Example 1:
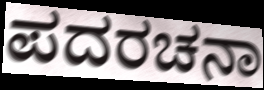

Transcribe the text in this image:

ಪದರಚನಾ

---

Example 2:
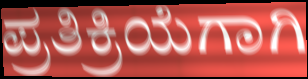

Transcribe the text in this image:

ಪ್ರತಿಕ್ರಿಯೆಗಾಗಿ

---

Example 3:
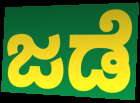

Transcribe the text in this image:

ಜಡೆ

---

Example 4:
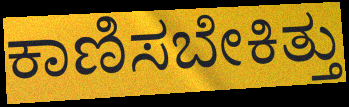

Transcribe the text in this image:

ಕಾಣಿಸಬೇಕಿತ್ತು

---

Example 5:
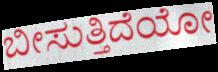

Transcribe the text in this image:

ಬೀಸುತ್ತಿದೆಯೋ